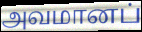
அவமானப்